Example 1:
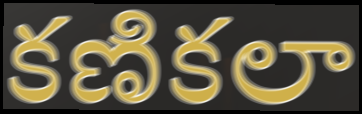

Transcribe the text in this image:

కణికలా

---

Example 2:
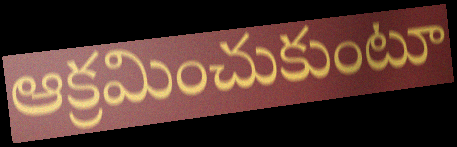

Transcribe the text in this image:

ఆక్రమించుకుంటూ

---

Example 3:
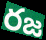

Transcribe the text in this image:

రజ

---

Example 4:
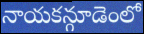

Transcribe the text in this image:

నాయకన్గూడెంలో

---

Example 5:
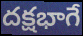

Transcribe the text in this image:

దక్షభాగే